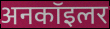
अनकॉइलर